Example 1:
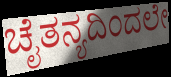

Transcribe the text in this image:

ಚೈತನ್ಯದಿಂದಲೇ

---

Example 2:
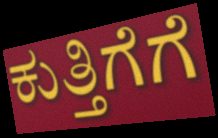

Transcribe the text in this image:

ಕುತ್ತಿಗೆಗೆ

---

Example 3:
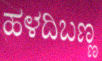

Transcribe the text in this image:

ಹಳದಿಬಣ್ಣ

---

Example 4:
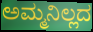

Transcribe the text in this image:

ಅಮ್ಮನಿಲ್ಲದ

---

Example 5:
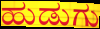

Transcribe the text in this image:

ಹುಡುಗು